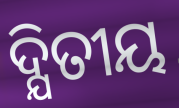
ଦ୍ଯିତୀୟ